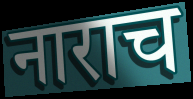
नाराच